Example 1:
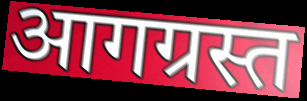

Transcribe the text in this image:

आगग्रस्त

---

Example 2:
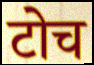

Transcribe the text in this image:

टोच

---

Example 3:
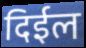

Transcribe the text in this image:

दिईल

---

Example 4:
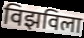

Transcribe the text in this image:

विझविला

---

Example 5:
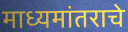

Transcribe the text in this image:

माध्यमांतराचे